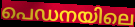
പെഡനയിലെ